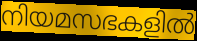
നിയമസഭകളിൽ